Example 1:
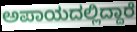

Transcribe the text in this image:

ಅಪಾಯದಲ್ಲಿದ್ದಾರೆ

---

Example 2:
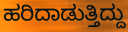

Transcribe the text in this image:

ಹರಿದಾಡುತ್ತಿದ್ದು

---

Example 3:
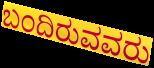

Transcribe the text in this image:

ಬಂದಿರುವವರು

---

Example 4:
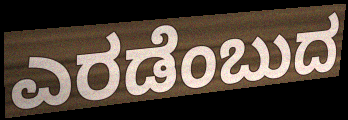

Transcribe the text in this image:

ಎರಡೆಂಬುದ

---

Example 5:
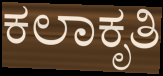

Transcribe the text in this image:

ಕಲಾಕೃತಿ